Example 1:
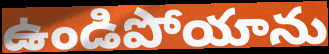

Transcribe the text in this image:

ఉండిపోయాను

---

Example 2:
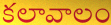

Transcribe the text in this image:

కలావాలం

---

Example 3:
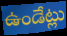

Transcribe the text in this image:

ఉండేట్లు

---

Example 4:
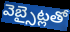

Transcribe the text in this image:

వెబ్సైట్లతో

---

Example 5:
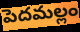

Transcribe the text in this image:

పెదమల్లం